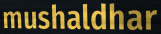
mushaldhar